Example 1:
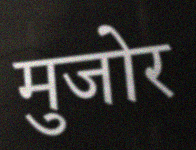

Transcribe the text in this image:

मुजोर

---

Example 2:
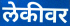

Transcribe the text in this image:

लेकीवर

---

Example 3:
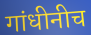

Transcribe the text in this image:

गांधीनीच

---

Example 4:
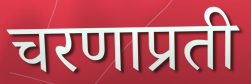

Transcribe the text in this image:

चरणाप्रती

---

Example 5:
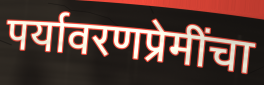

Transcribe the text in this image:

पर्यावरणप्रेमींचा